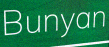
Bunyan